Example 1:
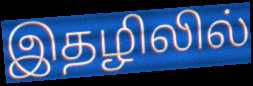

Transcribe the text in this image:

இதழிலில்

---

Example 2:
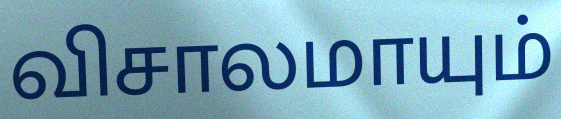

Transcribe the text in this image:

விசாலமாயும்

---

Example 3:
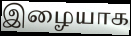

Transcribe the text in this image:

இழையாக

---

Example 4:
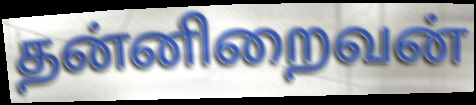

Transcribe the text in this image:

தன்னிறைவன்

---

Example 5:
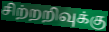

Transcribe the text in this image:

சிற்றறிவுக்கு